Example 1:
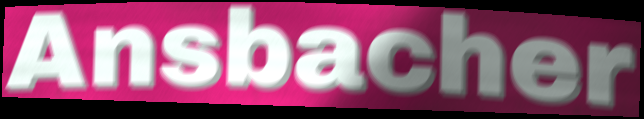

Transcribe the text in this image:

Ansbacher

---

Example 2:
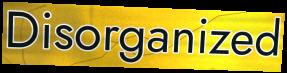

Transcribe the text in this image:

Disorganized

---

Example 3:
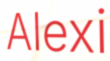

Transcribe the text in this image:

Alexi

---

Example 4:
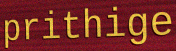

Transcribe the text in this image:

prithige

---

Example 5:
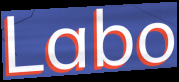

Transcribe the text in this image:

Labo